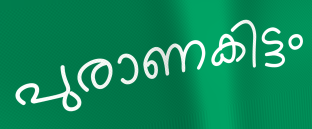
പുരാണകിട്ടം